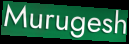
Murugesh